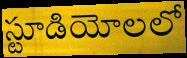
స్టూడియోలలో